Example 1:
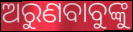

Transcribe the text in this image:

ଅରୁଣବାବୁଙ୍କୁ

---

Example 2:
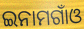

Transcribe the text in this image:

ଇନାମଗାଁଓ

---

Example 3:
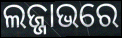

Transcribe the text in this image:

ଲଜ୍ଜାଭରେ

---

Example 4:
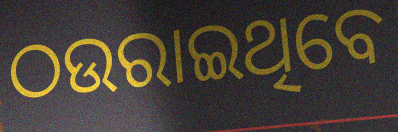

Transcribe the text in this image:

ଠଉରାଇଥିବେ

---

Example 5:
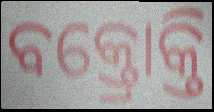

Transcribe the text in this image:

ବକ୍ତ୍ରୋକ୍ତି